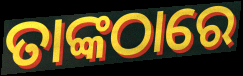
ତାଙ୍କଠାରେ